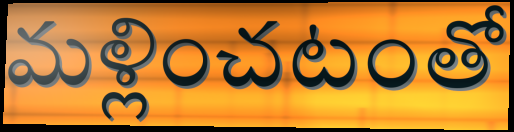
మళ్లించటంతో